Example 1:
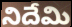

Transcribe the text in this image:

నిదేమి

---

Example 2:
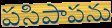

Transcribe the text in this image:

పసిపాపను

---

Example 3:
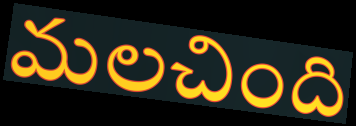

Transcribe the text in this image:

మలచింది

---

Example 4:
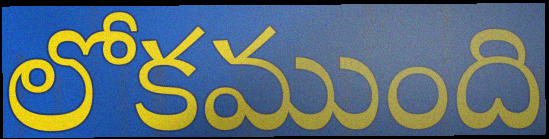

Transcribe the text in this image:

లోకముంది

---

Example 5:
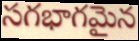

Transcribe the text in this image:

సగభాగమైన